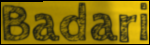
Badari